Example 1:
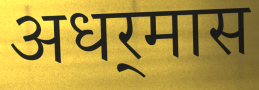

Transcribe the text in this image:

अधर्मास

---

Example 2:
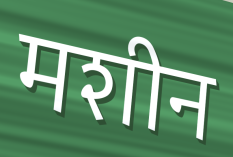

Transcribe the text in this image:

मशीन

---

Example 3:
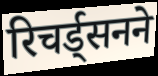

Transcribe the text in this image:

रिचर्ड्सनने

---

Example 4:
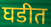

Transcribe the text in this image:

घडीत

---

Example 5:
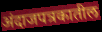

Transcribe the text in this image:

अंदाजपत्रकातील